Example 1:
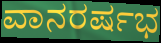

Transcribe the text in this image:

ವಾನರರ್ಷಭ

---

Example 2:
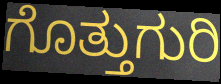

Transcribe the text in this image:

ಗೊತ್ತುಗುರಿ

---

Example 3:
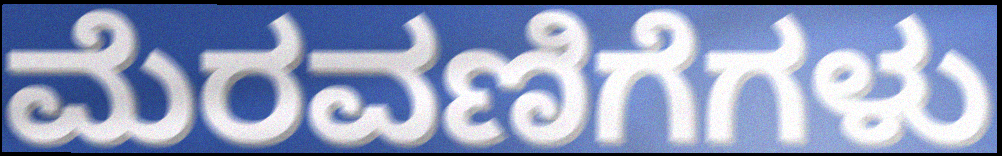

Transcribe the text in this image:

ಮೆರವಣಿಗೆಗಳು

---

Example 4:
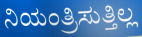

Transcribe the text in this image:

ನಿಯಂತ್ರಿಸುತ್ತಿಲ್ಲ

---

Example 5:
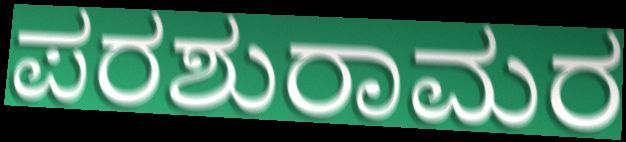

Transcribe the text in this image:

ಪರಶುರಾಮರ